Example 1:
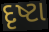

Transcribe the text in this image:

દૃષ્ટા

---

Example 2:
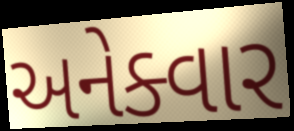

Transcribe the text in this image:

અનેક્વાર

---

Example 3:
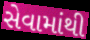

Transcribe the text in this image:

સેવામાંથી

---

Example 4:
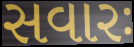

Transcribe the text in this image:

સવારઃ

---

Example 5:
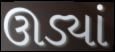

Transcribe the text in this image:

ઊડ્યાં